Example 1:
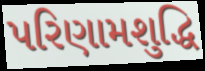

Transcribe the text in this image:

પરિણામશુદ્ધિ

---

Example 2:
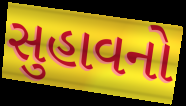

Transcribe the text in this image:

સુહાવનો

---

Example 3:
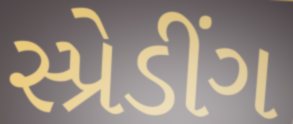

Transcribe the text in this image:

સ્પ્રેડીંગ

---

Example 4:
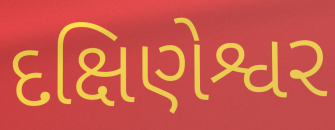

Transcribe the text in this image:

દક્ષિણેશ્વર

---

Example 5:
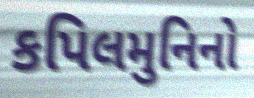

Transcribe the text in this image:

કપિલમુનિનો